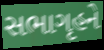
સભાગૃહને